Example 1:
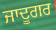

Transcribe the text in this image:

ਜਾਦੂਗਰ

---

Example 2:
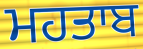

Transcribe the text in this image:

ਮਹਤਾਬ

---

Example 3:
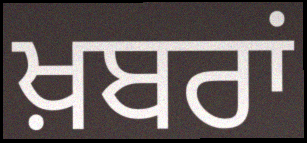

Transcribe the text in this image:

ਖ਼ਬਰਾਂ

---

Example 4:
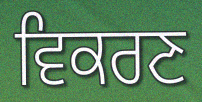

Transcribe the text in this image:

ਵਿਕਰਣ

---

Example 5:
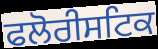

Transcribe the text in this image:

ਫਲੋਰੀਸਟਿਕ